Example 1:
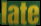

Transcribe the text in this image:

late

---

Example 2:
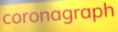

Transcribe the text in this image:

coronagraph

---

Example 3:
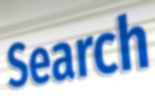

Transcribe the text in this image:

Search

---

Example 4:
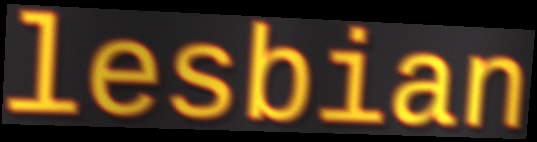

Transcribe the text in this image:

lesbian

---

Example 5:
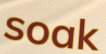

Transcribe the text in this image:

soak